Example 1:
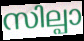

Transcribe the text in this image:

സില്പാ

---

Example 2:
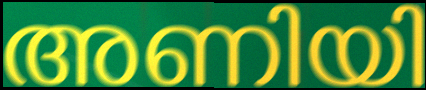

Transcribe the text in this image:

അണിയി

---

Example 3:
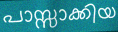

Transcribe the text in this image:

പാസ്സാക്കിയ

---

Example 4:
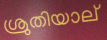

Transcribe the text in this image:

ശ്രുതിയാല്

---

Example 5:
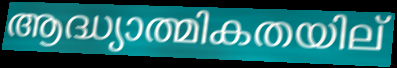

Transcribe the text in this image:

ആദ്ധ്യാത്മികതയില്